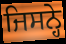
ਜਿਸਨ੍ਹੇ